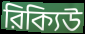
রিক্যিউ